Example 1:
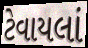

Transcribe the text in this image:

ટેવાયલાં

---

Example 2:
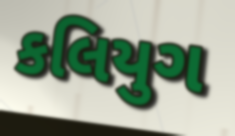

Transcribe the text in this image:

કલિયુગ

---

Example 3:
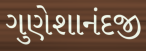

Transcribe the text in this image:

ગુણેશાનંદજી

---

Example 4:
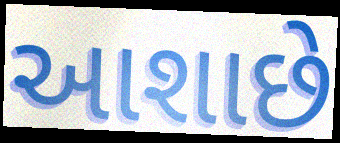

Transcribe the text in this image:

આશાછે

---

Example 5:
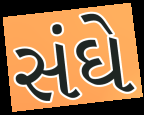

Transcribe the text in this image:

સંઘે